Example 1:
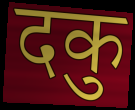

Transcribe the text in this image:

दकु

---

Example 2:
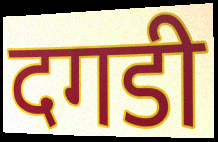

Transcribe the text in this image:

दगडी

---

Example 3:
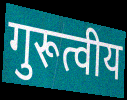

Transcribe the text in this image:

गुरूत्वीय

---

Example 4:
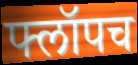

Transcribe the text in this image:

फ्लॉपच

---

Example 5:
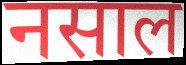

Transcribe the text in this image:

नसाल